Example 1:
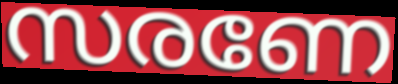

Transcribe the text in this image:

സരണേ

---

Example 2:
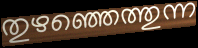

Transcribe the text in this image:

തുഴഞ്ഞെത്തുന്ന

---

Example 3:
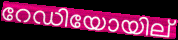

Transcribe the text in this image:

റേഡിയോയില്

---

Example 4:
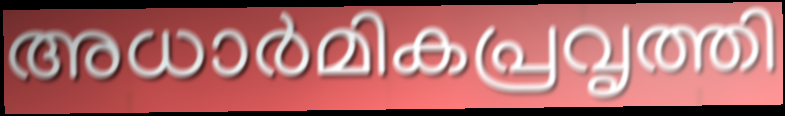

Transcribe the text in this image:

അധാർമികപ്രവൃത്തി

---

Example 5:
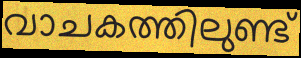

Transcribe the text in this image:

വാചകത്തിലുണ്ട്